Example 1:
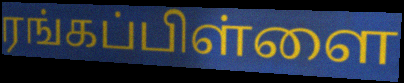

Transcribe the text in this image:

ரங்கப்பிள்ளை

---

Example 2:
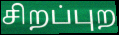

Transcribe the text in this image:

சிறப்புற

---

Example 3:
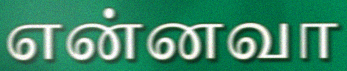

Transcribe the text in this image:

என்னவா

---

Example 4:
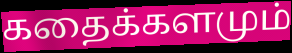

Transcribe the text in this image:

கதைக்களமும்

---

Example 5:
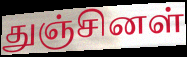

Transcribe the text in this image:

துஞ்சினள்